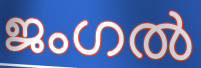
ജംഗൽ